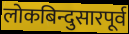
लोकबिन्दुसारपूर्व